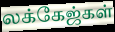
லக்கேஜ்கள்